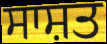
ਸਾਸ਼ਤ